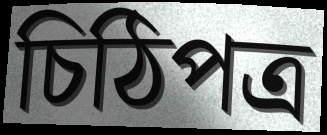
চিঠিপত্র